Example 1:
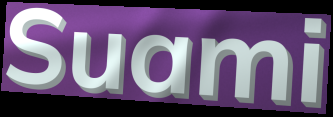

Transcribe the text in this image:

Suami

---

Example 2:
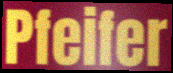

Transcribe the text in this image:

Pfeifer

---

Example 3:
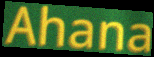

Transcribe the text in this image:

Ahana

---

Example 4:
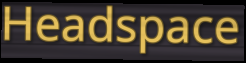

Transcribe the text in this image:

Headspace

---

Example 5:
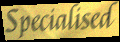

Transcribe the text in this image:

Specialised